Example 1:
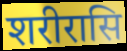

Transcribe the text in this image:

शरीरासि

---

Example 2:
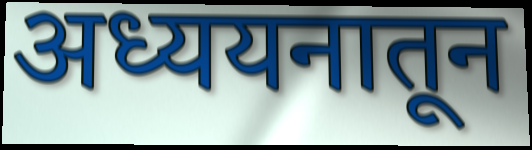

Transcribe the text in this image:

अध्ययनातून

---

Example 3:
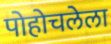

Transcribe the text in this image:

पोहोचलेला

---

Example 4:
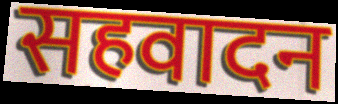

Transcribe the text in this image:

सहवादन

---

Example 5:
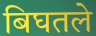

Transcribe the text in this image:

बिघतले